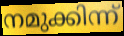
നമുക്കിന്ന്